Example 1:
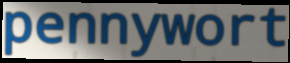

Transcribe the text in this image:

pennywort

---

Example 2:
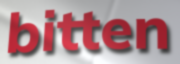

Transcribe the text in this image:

bitten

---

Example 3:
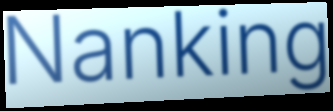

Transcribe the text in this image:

Nanking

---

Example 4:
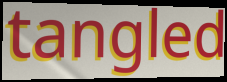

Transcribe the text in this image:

tangled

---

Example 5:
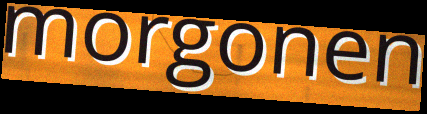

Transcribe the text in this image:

morgonen